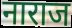
नाराज